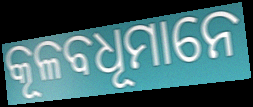
କୂଳବଧୂମାନେ